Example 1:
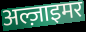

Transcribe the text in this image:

अल्ज़ाइमर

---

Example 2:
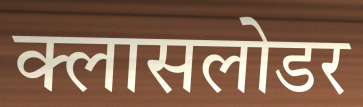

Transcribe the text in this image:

क्लासलोडर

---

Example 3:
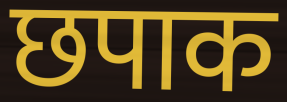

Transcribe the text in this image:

छपाक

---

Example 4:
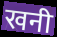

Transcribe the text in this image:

खनी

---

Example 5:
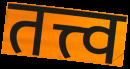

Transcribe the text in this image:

तत्त्व